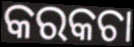
କରକଚା